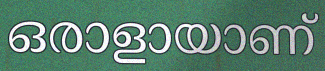
ഒരാളായാണ്